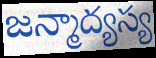
జన్మాద్యస్య